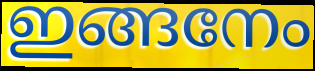
ഇങ്ങനേം